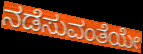
ನಡೆಸುವಂತೆಯೇ